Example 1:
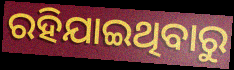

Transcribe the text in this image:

ରହିଯାଇଥିବାରୁ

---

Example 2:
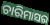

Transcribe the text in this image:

ଚାରିମାସର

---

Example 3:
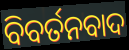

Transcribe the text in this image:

ବିବର୍ତନବାଦ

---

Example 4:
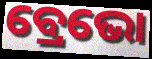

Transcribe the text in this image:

ବ୍ରେଭୋ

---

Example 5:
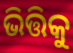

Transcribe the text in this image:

ଭିତ୍ତିକୁ